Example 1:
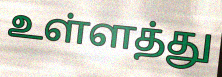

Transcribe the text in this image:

உள்ளத்து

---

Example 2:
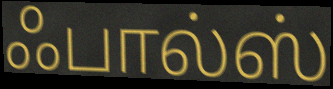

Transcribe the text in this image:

ஃபால்ஸ்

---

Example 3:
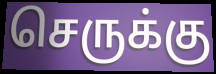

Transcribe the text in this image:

செருக்கு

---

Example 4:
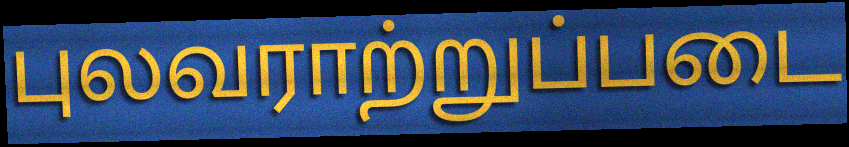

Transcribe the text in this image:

புலவராற்றுப்படை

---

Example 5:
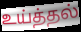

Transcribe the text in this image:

உய்த்தல்